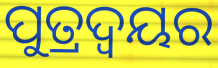
ପୁତ୍ରଦ୍ୱୟର